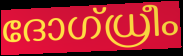
ദോഗ്ധ്രീം